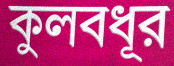
কুলবধূর